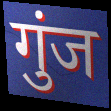
गुंज